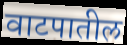
वाटपातील